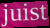
juist